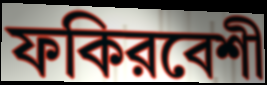
ফকিরবেশী